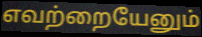
எவற்றையேனும்